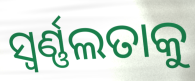
ସ୍ଵର୍ଣ୍ଣଲତାକୁ